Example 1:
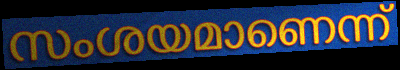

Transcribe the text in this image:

സംശയമാണെന്ന്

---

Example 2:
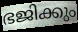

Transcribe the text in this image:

ഭജിക്കും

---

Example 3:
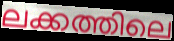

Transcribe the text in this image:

ലക്കത്തിലെ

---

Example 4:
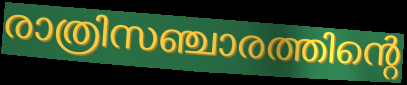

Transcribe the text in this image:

രാത്രിസഞ്ചാരത്തിന്റെ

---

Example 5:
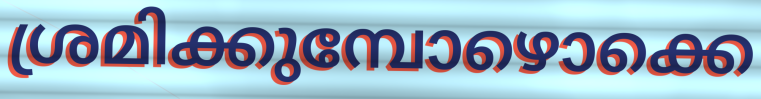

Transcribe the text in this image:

ശ്രമിക്കുമ്പോഴൊക്കെ